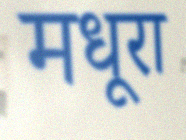
मधूरा